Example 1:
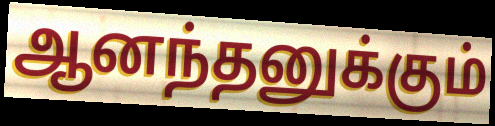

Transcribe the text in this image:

ஆனந்தனுக்கும்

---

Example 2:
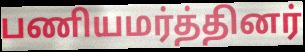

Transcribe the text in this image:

பணியமர்த்தினர்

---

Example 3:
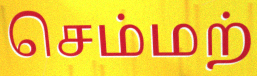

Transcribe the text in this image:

செம்மற்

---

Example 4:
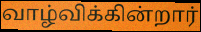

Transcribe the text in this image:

வாழ்விக்கின்றார்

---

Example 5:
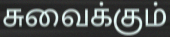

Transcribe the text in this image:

சுவைக்கும்